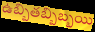
ఉబ్బితబ్బిబ్బయి